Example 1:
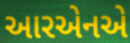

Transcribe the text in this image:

આરએનએ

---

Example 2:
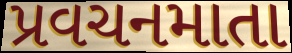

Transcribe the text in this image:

પ્રવચનમાતા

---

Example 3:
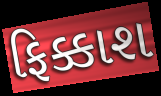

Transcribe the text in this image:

ફિક્કાશ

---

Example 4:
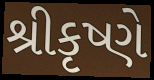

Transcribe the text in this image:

શ્રીકૃષ્ણે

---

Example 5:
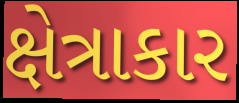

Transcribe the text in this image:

ક્ષેત્રાકાર